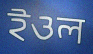
ইওল